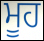
ਮੂਹ